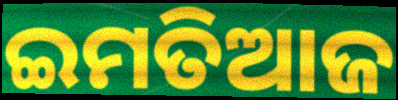
ଇମତିଆଜ